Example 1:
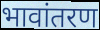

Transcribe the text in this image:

भावांतरण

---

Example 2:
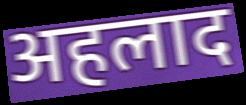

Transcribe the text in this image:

अहलाद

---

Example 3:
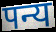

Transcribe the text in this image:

पन्य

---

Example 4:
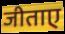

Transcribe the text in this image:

जीताए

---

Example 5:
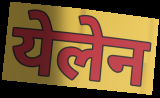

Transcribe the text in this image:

येलेन